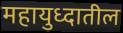
महायुध्दातील